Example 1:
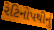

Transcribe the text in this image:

રેટિનોપથીનું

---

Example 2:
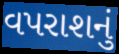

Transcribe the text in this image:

વપરાશનું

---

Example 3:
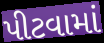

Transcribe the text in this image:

પીટવામાં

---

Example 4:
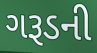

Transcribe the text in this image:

ગરૂડની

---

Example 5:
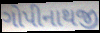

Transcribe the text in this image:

ગોપીનાથજી